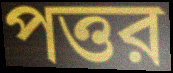
পত্তর